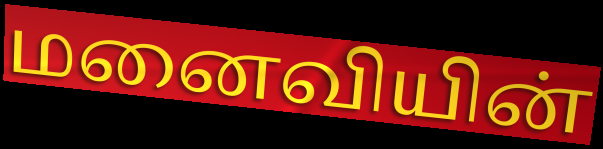
மனைவியின்